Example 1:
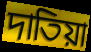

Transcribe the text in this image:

দাতিয়া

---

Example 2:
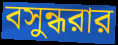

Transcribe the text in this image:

বসুন্ধরার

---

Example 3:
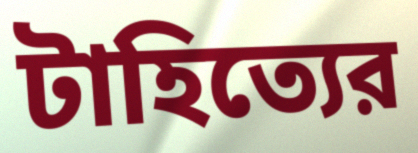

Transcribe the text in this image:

টাহিত্যের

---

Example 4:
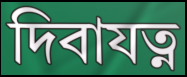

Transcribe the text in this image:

দিবাযত্ন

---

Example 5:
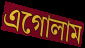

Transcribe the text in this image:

এগোলাম